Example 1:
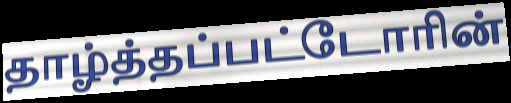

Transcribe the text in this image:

தாழ்த்தப்பட்டோரின்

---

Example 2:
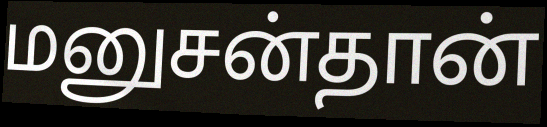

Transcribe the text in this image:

மனுசன்தான்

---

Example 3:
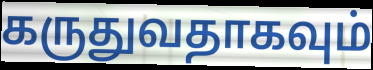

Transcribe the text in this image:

கருதுவதாகவும்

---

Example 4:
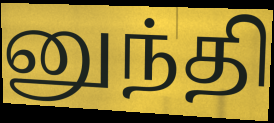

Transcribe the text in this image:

னுந்தி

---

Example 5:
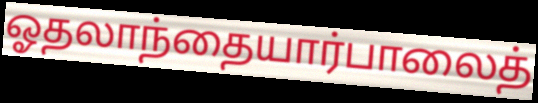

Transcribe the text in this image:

ஓதலாந்தையார்பாலைத்